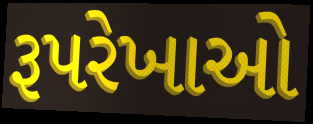
રૂપરેખાઓ